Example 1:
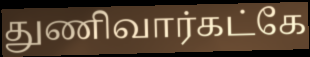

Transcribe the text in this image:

துணிவார்கட்கே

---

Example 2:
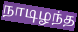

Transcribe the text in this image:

நாடிழந்த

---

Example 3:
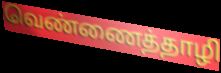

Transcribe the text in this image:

வெண்ணைத்தாழி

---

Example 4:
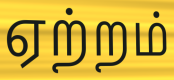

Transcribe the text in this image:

ஏற்றம்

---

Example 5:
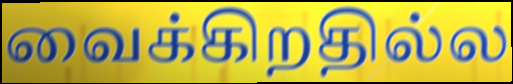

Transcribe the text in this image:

வைக்கிறதில்ல